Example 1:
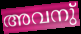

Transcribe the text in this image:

അവനു്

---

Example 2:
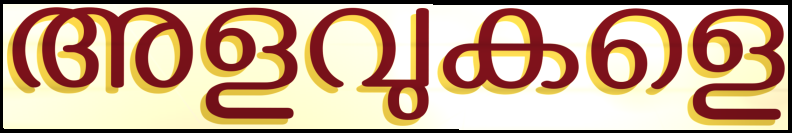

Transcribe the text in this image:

അളവുകളെ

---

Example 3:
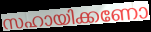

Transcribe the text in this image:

സഹായിക്കണോ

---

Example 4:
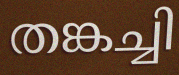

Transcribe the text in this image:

തങ്കച്ചി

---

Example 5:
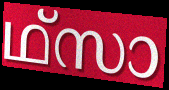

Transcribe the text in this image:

ഥ്സാ